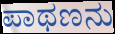
ಪಾಥಣನು